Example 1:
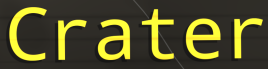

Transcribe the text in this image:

Crater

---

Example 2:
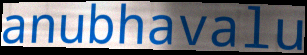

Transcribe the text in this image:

anubhavalu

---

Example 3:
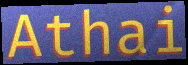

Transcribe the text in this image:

Athai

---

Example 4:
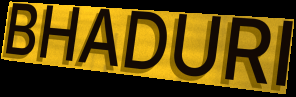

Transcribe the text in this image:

BHADURI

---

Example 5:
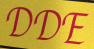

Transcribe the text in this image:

DDE